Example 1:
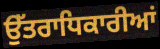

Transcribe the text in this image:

ਉੱਤਰਾਧਿਕਾਰੀਆਂ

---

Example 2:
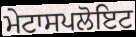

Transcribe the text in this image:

ਮੇਟਾਸਪਲੋਇਟ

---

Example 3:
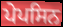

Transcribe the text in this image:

ਪੇਪਸਿਨ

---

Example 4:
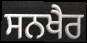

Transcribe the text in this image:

ਸਨਖੈਰ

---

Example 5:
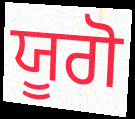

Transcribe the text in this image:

ਯੂਗੋ